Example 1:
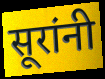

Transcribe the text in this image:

सूरांनी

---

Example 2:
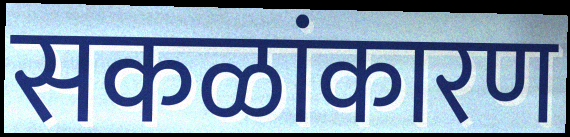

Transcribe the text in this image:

सकळांकारण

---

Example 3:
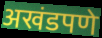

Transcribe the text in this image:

अखंडपणे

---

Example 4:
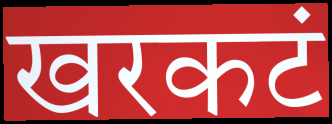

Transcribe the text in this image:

खरकटं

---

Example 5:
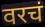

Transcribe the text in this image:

वरचं